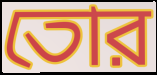
তোর